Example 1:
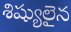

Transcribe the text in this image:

శిష్యులైన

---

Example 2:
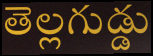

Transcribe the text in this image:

తెల్లగుడ్డు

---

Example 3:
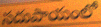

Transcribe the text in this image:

సదుపాయంలో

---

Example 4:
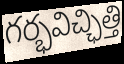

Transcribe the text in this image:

గర్భవిచ్ఛిత్తి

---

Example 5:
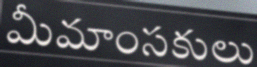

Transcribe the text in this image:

మీమాంసకులు